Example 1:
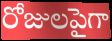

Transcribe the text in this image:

రోజులపైగా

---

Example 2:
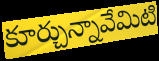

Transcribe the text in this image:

కూర్చున్నావేమిటి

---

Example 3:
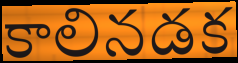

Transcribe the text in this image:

కాలినడక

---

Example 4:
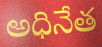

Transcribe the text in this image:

అధినేత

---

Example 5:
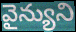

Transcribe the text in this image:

వైన్యుని